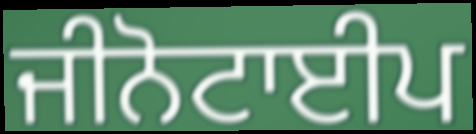
ਜੀਨੋਟਾਈਪ